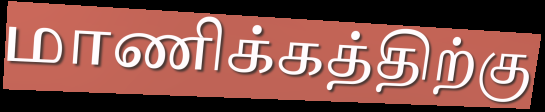
மாணிக்கத்திற்கு